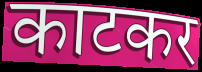
काटकर